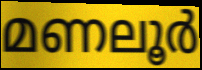
മണലൂർ